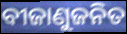
ବୀଜାଣୁଜନିତ